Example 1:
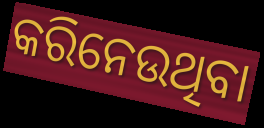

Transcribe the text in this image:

କରିନେଉଥିବା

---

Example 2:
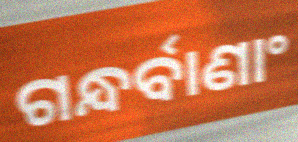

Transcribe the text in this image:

ଗନ୍ଧର୍ବାଣାଂ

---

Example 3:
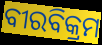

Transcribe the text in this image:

ବୀରବିକ୍ରମ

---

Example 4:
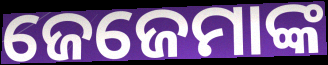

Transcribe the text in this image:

ଜେଜେମାଙ୍କ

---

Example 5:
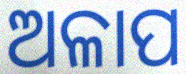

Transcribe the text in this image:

ଅଳାପ